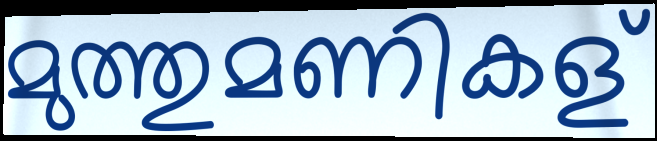
മുത്തുമണികള്